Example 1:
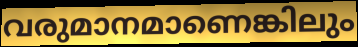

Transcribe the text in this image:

വരുമാനമാണെങ്കിലും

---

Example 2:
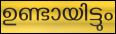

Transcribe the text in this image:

ഉണ്ടായിട്ടും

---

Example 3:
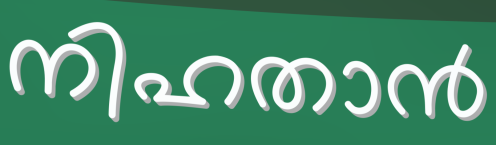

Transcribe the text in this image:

നിഹതാൻ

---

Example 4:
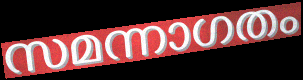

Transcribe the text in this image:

സമന്നാഗതം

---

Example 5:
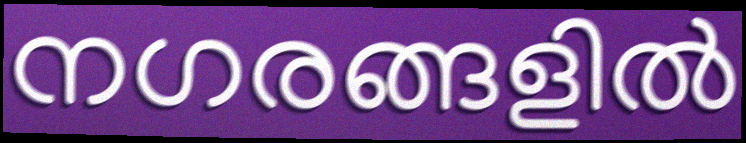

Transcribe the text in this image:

നഗരങ്ങളിൽ